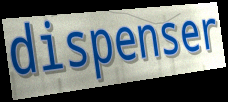
dispenser